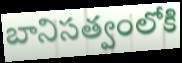
బానిసత్వంలోకి